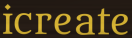
icreate